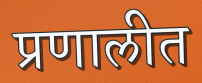
प्रणालीत